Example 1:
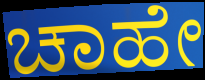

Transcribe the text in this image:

ಚಾಹೇ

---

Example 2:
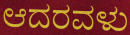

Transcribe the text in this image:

ಆದರವಳು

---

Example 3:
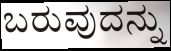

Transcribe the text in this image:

ಬರುವುದನ್ನು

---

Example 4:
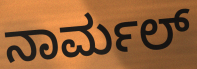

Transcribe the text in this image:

ನಾರ್ಮಲ್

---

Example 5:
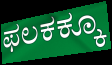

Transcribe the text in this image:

ಫಲಕಕ್ಕೂ